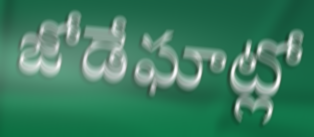
జోడేఘాట్లో